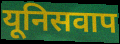
यूनिसवाप